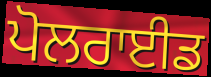
ਪੋਲਰਾਈਡ